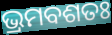
ଭ୍ରମବଶତଃ